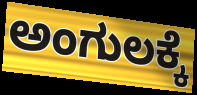
ಅಂಗುಲಕ್ಕೆ